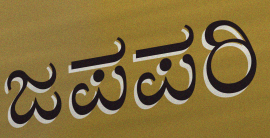
ಜಪಪರಿ